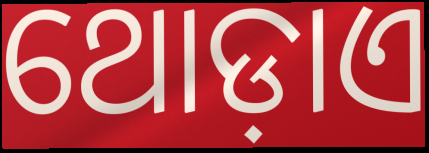
ଥୋଡ଼ାଏ